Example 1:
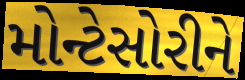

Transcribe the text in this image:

મોન્ટેસોરીને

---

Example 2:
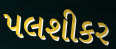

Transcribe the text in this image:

પલશીકર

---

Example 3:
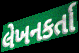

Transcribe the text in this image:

લેખનકર્તા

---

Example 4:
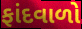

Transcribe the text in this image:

ફાંદવાળો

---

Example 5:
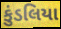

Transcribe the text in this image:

કુંડલિયા